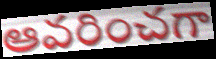
ఆవరించగా